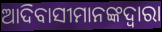
ଆଦିବାସୀମାନଙ୍କଦ୍ୱାରା